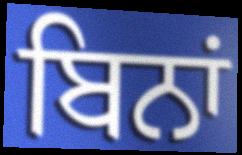
ਬਿਨਾਂ